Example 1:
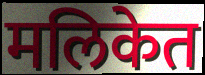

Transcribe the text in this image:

मलिकेत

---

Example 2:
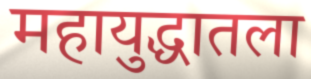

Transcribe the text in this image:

महायुद्धातला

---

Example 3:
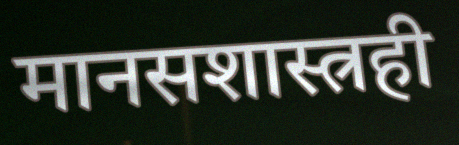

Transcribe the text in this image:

मानसशास्त्रही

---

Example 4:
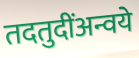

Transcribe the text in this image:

तदतुदींअन्वये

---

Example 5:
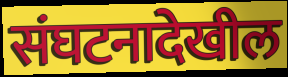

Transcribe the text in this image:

संघटनादेखील